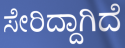
ಸೇರಿದ್ದಾಗಿದೆ